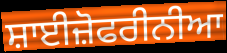
ਸ਼ਾਈਜ਼ੋਫਰੀਨੀਆ